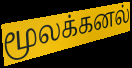
மூலக்கனல்